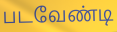
படவேண்டி